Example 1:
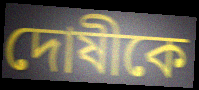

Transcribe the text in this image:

দোষীকে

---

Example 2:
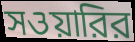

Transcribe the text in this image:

সওয়ারির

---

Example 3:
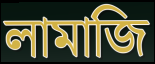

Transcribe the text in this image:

লামাজি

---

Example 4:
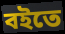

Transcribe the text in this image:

বইতে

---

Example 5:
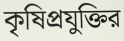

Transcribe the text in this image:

কৃষিপ্রযুক্তির